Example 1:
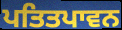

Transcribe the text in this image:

ਪਤਿਤਪਾਵਨ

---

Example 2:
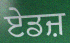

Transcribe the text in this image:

ਏਡਜ਼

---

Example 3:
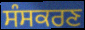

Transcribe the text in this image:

ਸੰਸਕਰਣ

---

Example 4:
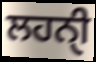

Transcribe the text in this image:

ਲਹਨੑੀ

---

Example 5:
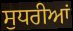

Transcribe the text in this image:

ਸੁਧਰੀਆਂ